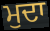
ਮੁਦਾ